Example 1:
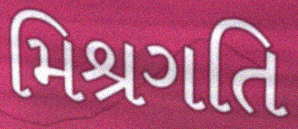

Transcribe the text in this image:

મિશ્રગતિ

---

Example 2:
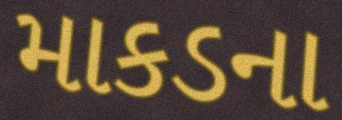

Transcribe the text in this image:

માકડના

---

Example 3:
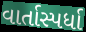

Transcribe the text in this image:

વાર્તાસ્પર્ધા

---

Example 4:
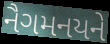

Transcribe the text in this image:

નૈગમનયને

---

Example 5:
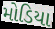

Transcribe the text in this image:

મોડિયા